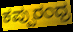
ಕಪ್ಪುರಂಧ್ರ